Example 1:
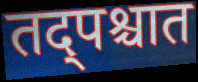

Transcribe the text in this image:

तद्पश्चात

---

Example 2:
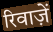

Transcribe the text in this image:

रिवाज़ें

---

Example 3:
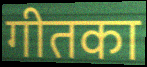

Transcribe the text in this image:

गीतका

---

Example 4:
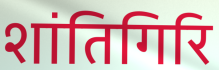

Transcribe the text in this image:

शांतिगिरि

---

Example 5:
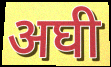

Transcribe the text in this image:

अघी